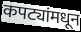
कपट्यांमधून